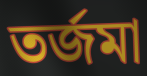
তর্জমা